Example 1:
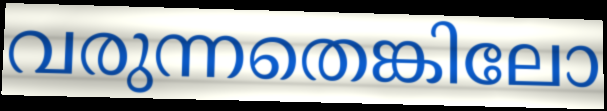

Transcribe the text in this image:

വരുന്നതെങ്കിലോ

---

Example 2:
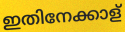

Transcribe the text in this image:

ഇതിനേക്കാള്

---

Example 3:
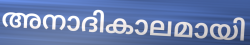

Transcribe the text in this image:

അനാദികാലമായി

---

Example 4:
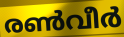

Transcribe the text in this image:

രൺവീർ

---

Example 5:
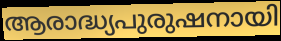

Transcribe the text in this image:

ആരാദ്ധ്യപുരുഷനായി